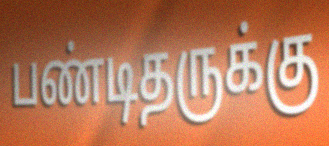
பண்டிதருக்கு